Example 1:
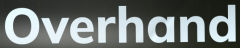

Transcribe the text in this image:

Overhand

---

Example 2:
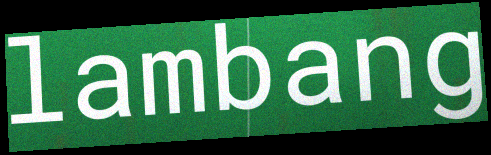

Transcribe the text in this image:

lambang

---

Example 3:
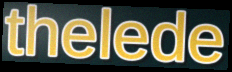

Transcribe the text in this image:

thelede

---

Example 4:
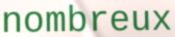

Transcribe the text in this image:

nombreux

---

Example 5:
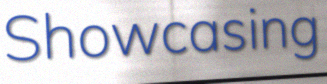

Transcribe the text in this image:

Showcasing